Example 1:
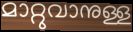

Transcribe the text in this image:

മാറ്റുവാനുള്ള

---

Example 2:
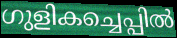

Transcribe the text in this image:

ഗുളികച്ചെപ്പിൽ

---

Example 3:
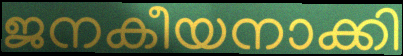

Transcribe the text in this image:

ജനകീയനാക്കി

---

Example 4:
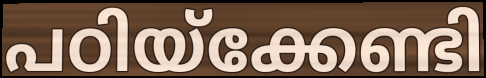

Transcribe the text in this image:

പഠിയ്ക്കേണ്ടി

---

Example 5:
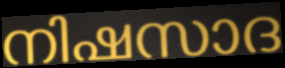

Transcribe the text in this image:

നിഷസാദ